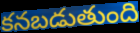
కనబడుతుంది